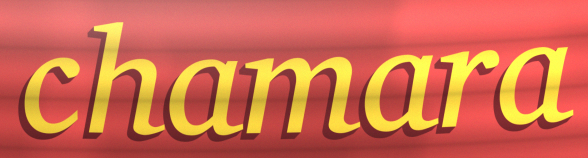
chamara